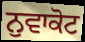
ਨੁਵਾਕੋਟ